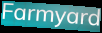
Farmyard